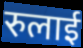
रुलाई